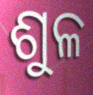
ଶୁଳ